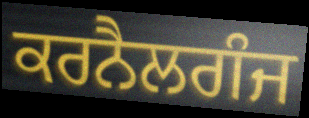
ਕਰਨੈਲਗੰਜ